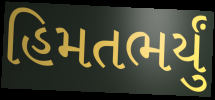
હિમતભર્યું